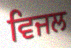
ਵਿਜਲ